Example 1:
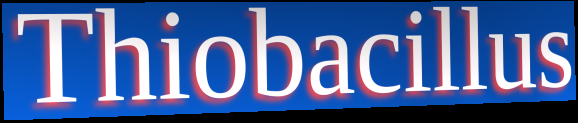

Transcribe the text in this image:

Thiobacillus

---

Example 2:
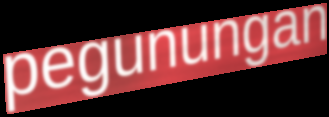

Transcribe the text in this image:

pegunungan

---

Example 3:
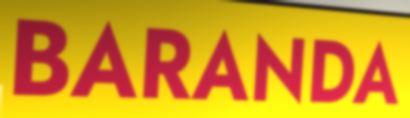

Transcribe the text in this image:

BARANDA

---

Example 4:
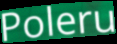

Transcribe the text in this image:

Poleru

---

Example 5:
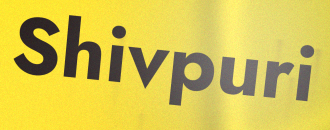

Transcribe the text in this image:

Shivpuri